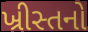
ખ્રીસ્તનો